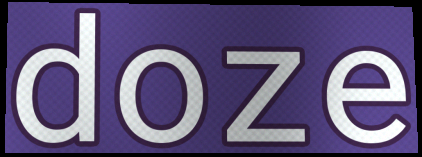
doze